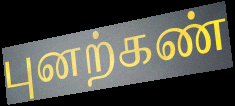
புனற்கண்